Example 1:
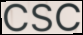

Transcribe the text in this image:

CSC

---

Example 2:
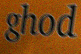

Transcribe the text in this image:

ghod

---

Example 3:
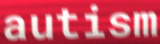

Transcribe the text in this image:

autism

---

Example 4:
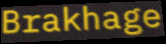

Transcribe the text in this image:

Brakhage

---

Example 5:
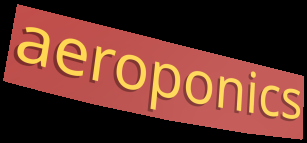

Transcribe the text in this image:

aeroponics